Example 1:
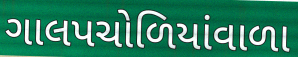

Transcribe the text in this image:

ગાલપચોળિયાંવાળા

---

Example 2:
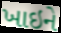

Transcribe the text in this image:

ખાઇને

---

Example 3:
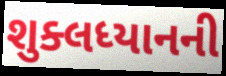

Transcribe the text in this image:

શુક્લધ્યાનની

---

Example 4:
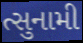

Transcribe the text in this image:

ત્સુનામી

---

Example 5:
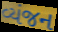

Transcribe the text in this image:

વ્યંજન